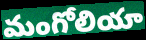
మంగోలియా